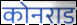
कोनराड